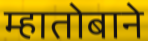
म्हातोबाने